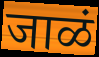
जाळं